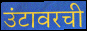
उंटावरची